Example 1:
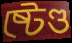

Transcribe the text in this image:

ষ্টেণ্ড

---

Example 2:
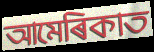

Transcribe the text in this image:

আমেৰিকাত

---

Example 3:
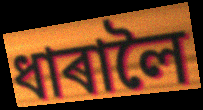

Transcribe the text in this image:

ধাৰালৈ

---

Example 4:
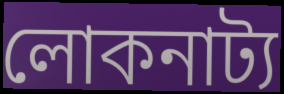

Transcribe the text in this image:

লোকনাট্য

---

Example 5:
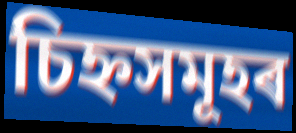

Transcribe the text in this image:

চিহ্নসমূহৰ